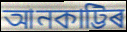
আনকাট্টিৰ